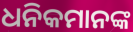
ଧନିକମାନଙ୍କ